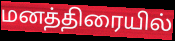
மனத்திரையில்